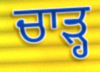
ਚਾਡ਼੍ਹ